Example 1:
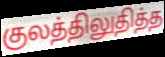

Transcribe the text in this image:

குலத்திலுதித்த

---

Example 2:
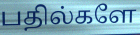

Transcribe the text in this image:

பதில்களே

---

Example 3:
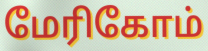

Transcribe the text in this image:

மேரிகோம்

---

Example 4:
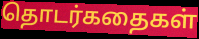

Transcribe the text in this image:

தொடர்கதைகள்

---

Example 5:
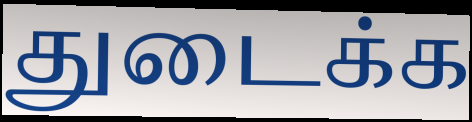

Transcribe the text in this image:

துடைக்க